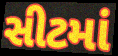
સીટમાં